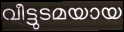
വീട്ടുടമയായ